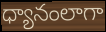
ధ్యానంలాగా